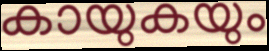
കായുകയും